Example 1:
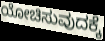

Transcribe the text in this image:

ಯೋಚಿಸುವುದಕ್ಕೆ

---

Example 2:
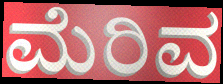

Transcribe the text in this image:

ಮೆರಿವ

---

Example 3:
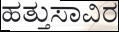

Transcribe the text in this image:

ಹತ್ತುಸಾವಿರ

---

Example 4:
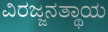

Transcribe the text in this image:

ವಿರಜ್ಜನತ್ಥಾಯ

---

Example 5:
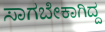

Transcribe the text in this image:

ಸಾಗಬೇಕಾಗಿದ್ದ